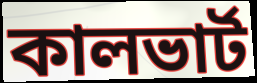
কালভার্ট